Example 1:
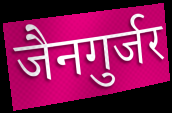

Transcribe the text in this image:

जैनगुर्जर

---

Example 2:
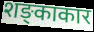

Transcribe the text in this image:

शङ्काकार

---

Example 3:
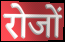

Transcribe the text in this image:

रोजों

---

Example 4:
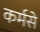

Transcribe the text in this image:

कर्मसे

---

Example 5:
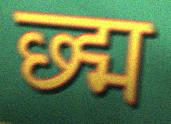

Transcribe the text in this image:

छ्द्म